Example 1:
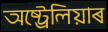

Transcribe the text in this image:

অষ্ট্ৰেলিয়াৰ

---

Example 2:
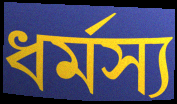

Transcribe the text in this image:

ধৰ্মস্য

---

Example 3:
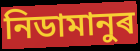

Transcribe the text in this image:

নিডামানুৰ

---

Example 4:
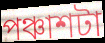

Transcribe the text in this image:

পঞ্চাশটা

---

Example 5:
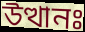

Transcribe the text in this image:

উত্থানঃ